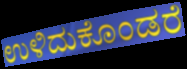
ಉಳಿದುಕೊಂಡರೆ